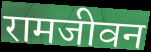
रामजीवन